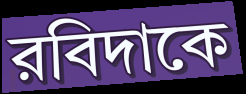
রবিদাকে